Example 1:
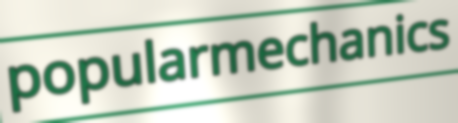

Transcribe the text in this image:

popularmechanics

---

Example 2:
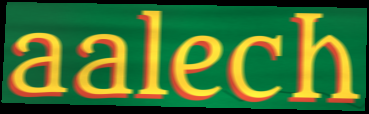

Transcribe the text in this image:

aalech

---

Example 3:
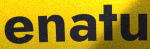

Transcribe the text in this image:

enatu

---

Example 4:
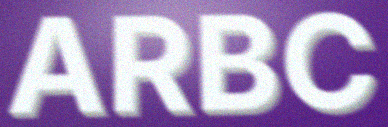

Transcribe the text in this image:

ARBC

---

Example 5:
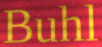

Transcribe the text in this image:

Buhl